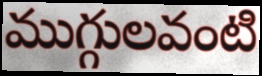
ముగ్గులవంటి